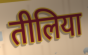
तीलिया